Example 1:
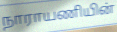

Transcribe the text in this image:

நாராயணியின்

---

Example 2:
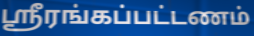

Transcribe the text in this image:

ஸ்ரீரங்கப்பட்டணம்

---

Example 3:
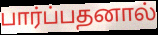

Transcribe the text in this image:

பார்ப்பதனால்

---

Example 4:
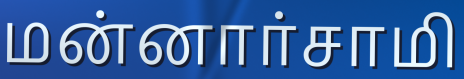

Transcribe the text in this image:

மன்னார்சாமி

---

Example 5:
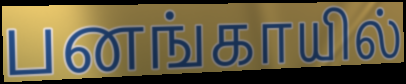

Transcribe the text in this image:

பனங்காயில்